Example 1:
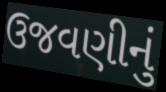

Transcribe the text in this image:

ઉજવણીનું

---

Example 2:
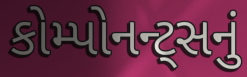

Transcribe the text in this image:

કોમ્પોનન્ટ્સનું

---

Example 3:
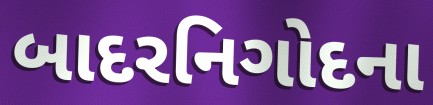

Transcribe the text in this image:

બાદરનિગોદના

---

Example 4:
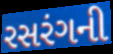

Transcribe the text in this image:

રસરંગની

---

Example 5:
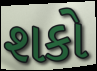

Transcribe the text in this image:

શકો